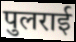
पुलराई